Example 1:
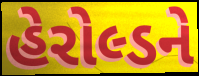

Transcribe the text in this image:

હેરોલ્ડને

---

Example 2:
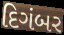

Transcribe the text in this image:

દિગંબર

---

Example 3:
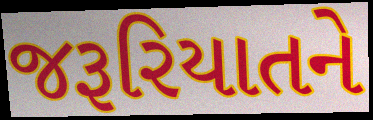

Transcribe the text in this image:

જરૂરિયાતને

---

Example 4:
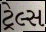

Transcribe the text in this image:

ટ્રેલ્સ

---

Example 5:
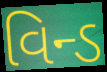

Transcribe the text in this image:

વિન્ડ